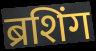
ब्रशिंग